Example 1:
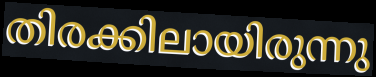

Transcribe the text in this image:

തിരക്കിലായിരുന്നു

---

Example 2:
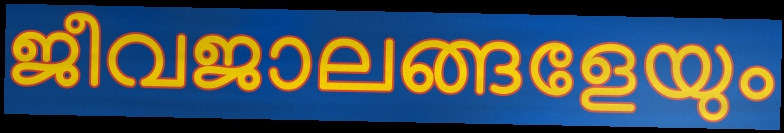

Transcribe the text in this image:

ജീവജാലങ്ങളേയും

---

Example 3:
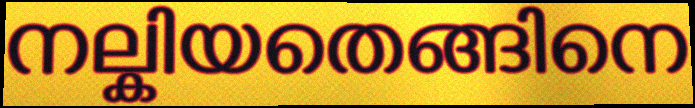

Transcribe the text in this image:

നല്കിയതെങ്ങിനെ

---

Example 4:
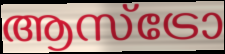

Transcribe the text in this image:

ആസ്ട്രോ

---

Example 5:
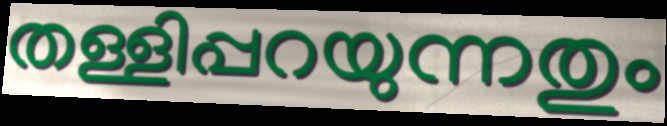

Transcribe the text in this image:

തള്ളിപ്പറയുന്നതും